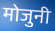
मोजुनी